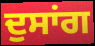
ਦੁਸਾਂਗ